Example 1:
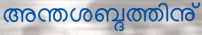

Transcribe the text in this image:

അന്തശബ്ദത്തിനു്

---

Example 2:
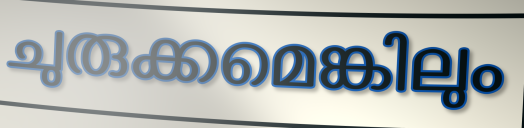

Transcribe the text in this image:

ചുരുക്കമെങ്കിലും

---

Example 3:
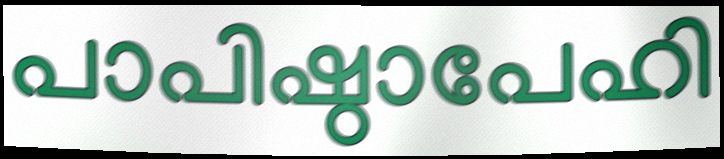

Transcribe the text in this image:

പാപിഷ്ഠാപേഹി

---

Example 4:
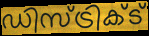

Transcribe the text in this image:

ഡിസ്ട്രിക്ട്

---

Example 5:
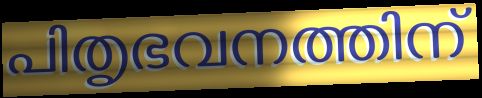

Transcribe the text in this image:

പിതൃഭവനത്തിന്